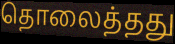
தொலைத்தது